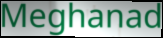
Meghanad